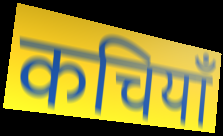
कचियाँ